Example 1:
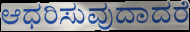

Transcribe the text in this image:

ಆಧರಿಸುವುದಾದರೆ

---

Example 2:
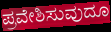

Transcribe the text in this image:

ಪ್ರವೇಶಿಸುವುದೂ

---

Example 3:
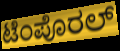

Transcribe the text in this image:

ಟೆಂಪೊರಲ್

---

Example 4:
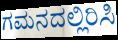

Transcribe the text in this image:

ಗಮನದಲ್ಲಿರಿಸಿ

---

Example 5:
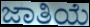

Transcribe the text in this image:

ಜಾತಿಯೆ